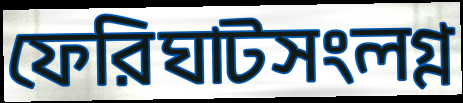
ফেরিঘাটসংলগ্ন